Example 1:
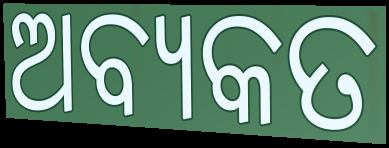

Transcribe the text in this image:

ଅବ୍ୟକତ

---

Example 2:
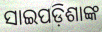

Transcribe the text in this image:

ସାଇପଡ଼ିଶାଙ୍କ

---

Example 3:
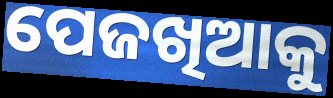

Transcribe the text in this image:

ପେଜଖିଆକୁ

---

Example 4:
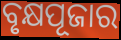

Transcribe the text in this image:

ବୃକ୍ଷପୂଜାର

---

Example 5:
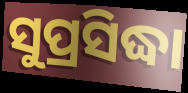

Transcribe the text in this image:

ସୁପ୍ରସିଦ୍ଧା